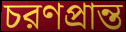
চরণপ্রান্ত